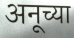
अनूच्या